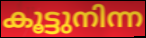
കൂട്ടുനിന്ന